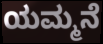
ಯಮ್ಮನೆ